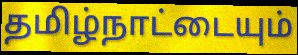
தமிழ்நாட்டையும்